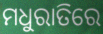
ମଧୁରାତିରେ